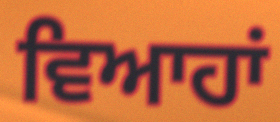
ਵਿਆਹਾਂ